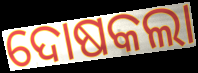
ଦୋଷକଲା